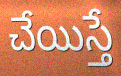
చేయిస్తే